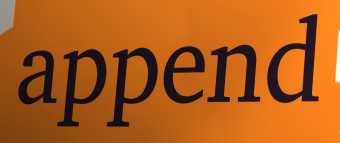
append